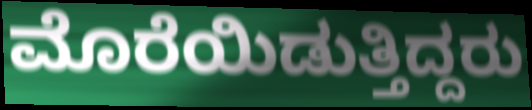
ಮೊರೆಯಿಡುತ್ತಿದ್ದರು